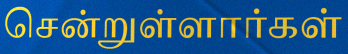
சென்றுள்ளார்கள்